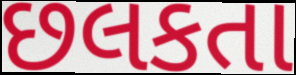
છલકતા